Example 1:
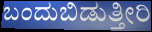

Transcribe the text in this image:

ಬಂದುಬಿಡುತ್ತೀರಿ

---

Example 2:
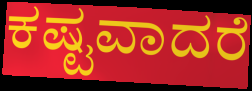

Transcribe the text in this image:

ಕಷ್ಟವಾದರೆ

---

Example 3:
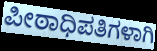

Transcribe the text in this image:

ಪೀಠಾಧಿಪತಿಗಳಾಗಿ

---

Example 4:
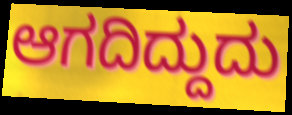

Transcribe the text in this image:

ಆಗದಿದ್ದುದು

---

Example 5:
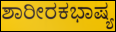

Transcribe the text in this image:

ಶಾರೀರಕಭಾಷ್ಯ